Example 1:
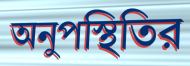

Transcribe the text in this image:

অনুপস্থিতির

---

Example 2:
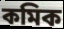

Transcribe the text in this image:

কমিক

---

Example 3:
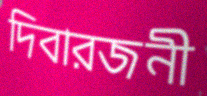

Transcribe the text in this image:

দিবারজনী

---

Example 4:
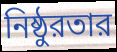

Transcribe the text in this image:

নিষ্ঠুরতার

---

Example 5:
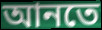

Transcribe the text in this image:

আনতে